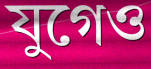
যুগেও